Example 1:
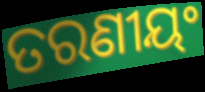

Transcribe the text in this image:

ତରଣୀୟଂ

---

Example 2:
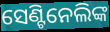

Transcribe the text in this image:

ସେଣ୍ଟିନେଲିଙ୍କ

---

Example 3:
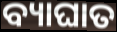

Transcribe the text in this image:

ବ୍ୟାଘାତ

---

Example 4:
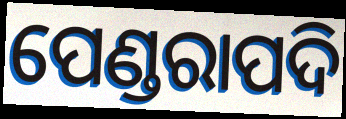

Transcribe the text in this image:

ପେଣ୍ଡରାପଦି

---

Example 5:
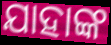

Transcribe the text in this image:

ଯାହାଙ୍କ